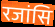
रजांसि